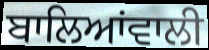
ਬਾਲਿਆਂਵਾਲੀ